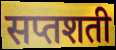
सप्तशती